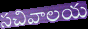
సచివాలయ